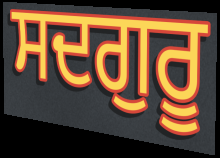
ਸਦਗੁਰੂ